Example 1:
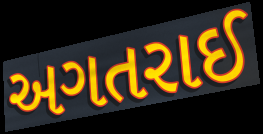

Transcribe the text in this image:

અગતરાઈ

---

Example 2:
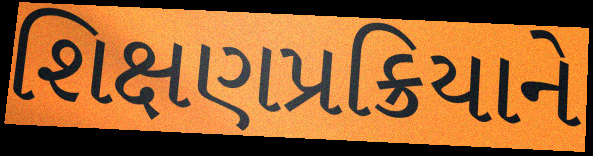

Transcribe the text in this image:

શિક્ષણપ્રક્રિયાને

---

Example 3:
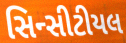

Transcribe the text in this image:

સિન્સીટીયલ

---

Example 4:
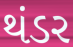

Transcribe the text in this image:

થંડર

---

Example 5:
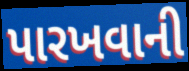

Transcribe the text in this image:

પારખવાની